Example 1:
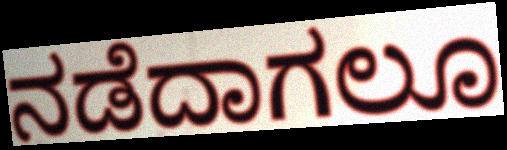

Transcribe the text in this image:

ನಡೆದಾಗಲೂ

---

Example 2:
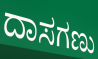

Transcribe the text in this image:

ದಾಸಗಣು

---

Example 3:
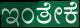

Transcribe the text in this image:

ಇಂತೇಕೆ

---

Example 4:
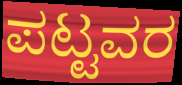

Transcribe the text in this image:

ಪಟ್ಟವರ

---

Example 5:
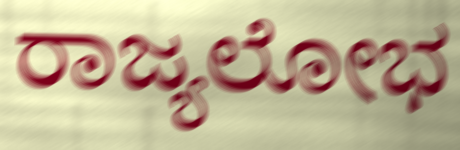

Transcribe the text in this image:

ರಾಜ್ಯಲೋಭ